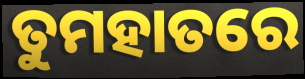
ତୁମହାତରେ